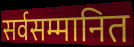
सर्वसम्मानित